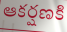
ఆకర్షణకి